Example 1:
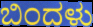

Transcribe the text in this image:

ಬಿಂದಳು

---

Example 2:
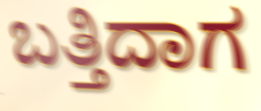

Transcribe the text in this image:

ಬತ್ತಿದಾಗ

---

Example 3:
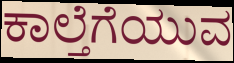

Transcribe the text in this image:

ಕಾಲ್ತೆಗೆಯುವ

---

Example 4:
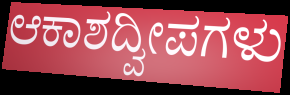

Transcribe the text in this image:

ಆಕಾಶದ್ವೀಪಗಳು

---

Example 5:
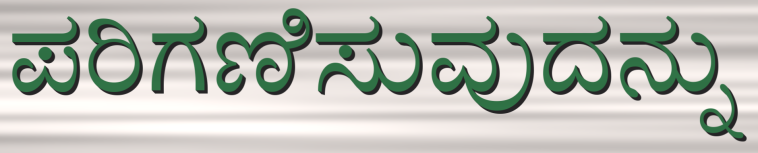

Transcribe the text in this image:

ಪರಿಗಣಿಸುವುದನ್ನು